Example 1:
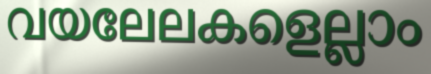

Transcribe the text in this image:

വയലേലകളെല്ലാം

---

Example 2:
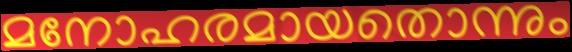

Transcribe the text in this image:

മനോഹരമായതൊന്നും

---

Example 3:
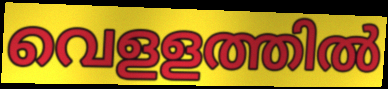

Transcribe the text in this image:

വെളളത്തിൽ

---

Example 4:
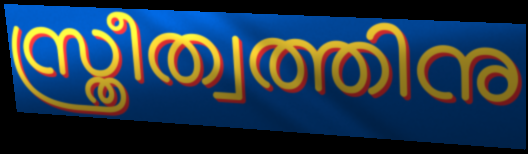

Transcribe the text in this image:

സ്ത്രീത്വത്തിനു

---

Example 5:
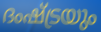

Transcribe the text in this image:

ദംഷ്ട്രയും